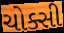
ચોક્સી